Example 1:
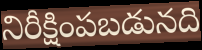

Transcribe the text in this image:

నిరీక్షింపబడునది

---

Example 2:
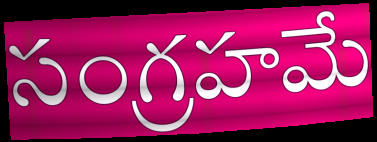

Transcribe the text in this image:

సంగ్రహమే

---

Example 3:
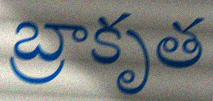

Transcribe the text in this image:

బ్రాకృత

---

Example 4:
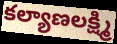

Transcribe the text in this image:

కల్యాణలక్ష్మి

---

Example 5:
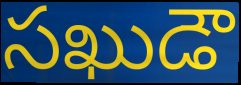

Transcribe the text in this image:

సఖుడౌ